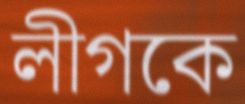
লীগকে